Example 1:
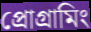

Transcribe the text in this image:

প্রোগ্রামিং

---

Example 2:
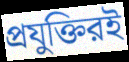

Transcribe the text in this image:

প্রযুক্তিরই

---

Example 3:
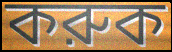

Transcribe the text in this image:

করুক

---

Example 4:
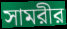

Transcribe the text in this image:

সামরীর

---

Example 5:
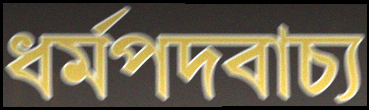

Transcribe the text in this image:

ধর্মপদবাচ্য